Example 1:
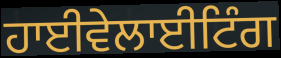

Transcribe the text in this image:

ਹਾਈਵੇਲਾਈਟਿੰਗ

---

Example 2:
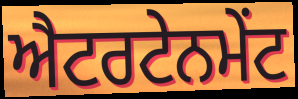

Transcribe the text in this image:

ਐਟਰਟੇਨਮੇਂਟ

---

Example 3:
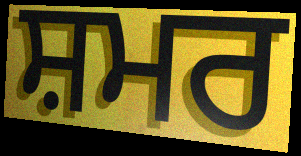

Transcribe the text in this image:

ਸ਼ਮਰ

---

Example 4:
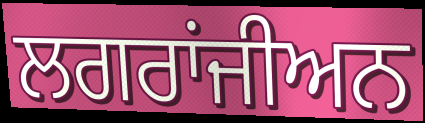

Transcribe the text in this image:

ਲਗਰਾਂਜੀਅਨ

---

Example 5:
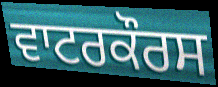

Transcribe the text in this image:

ਵਾਟਰਕੌਰਸ